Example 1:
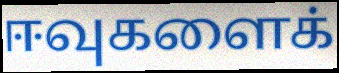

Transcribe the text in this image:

ஈவுகளைக்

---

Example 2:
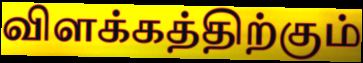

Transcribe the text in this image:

விளக்கத்திற்கும்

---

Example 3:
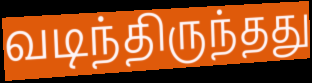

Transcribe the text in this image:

வடிந்திருந்தது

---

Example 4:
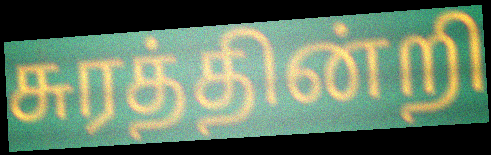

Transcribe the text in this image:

சுரத்தின்றி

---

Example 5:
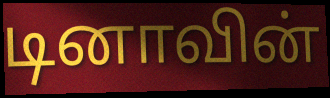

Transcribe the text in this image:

டினாவின்